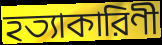
হত্যাকারিণী